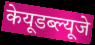
केयूडब्ल्यूजे